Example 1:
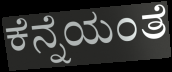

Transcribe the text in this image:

ಕೆನ್ನೆಯಂತೆ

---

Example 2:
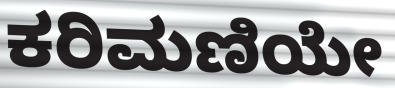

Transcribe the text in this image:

ಕರಿಮಣಿಯೇ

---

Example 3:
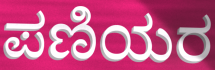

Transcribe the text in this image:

ಪಣಿಯರ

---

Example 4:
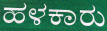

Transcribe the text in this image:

ಹಳಕಾರು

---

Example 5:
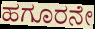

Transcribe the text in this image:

ಹಗೂರನೇ